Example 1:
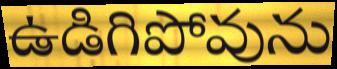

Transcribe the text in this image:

ఉడిగిపోవును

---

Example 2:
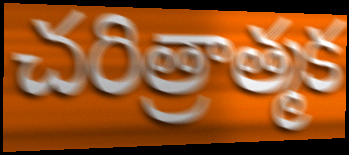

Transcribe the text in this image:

చరిత్రాత్మక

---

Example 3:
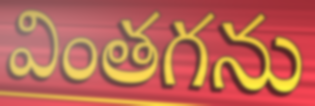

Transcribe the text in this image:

వింతగను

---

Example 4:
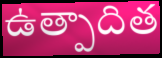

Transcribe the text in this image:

ఉత్పాదిత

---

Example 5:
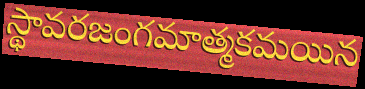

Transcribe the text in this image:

స్థావరజంగమాత్మకమయిన